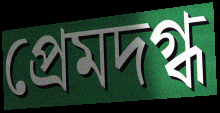
প্রেমদগ্ধ